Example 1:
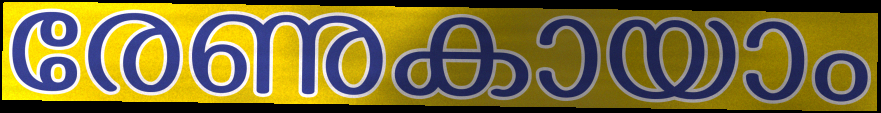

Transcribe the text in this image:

രേണുകായാം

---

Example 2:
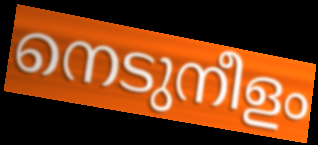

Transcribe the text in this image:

നെടുനീളം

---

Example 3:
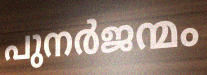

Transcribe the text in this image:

പുനർജന്മം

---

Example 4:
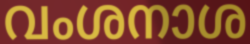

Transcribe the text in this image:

വംശനാശ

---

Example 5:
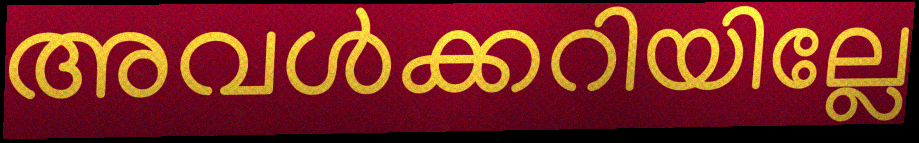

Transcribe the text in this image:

അവൾക്കറിയില്ലേ